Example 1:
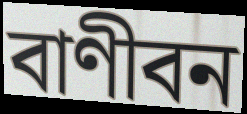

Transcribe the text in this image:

বাণীবন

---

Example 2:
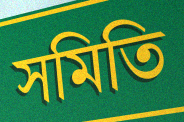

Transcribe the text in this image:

সমিতি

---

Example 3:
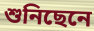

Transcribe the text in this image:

শুনিছেনে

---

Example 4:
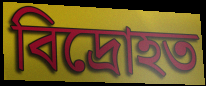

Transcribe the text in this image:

বিদ্ৰোহত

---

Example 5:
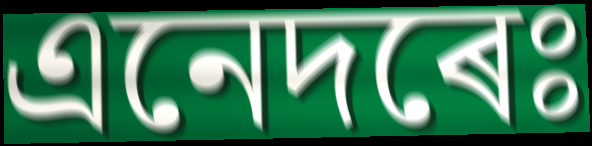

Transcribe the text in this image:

এনেদৰেঃ